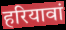
हरियावां